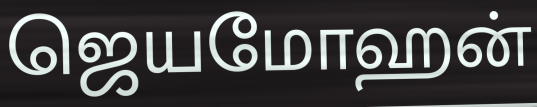
ஜெயமோஹன்